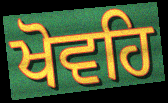
ਖੋਵਹਿ